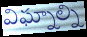
విఘ్నాల్ని